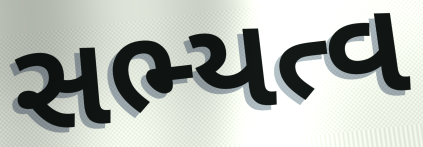
સભ્યત્વ